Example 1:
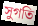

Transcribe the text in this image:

সুগতি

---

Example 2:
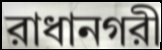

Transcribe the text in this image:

রাধানগরী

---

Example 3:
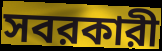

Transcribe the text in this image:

সবরকারী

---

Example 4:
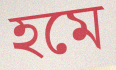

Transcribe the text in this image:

হমে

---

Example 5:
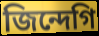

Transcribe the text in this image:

জিন্দেগি